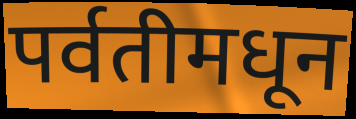
पर्वतीमधून